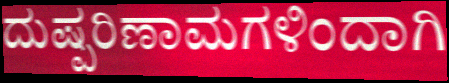
ದುಷ್ಪರಿಣಾಮಗಳಿಂದಾಗಿ